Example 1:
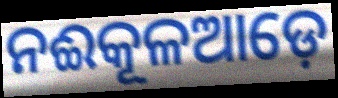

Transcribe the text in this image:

ନଈକୂଳଆଡ଼େ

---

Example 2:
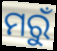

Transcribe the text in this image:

ମରୁଁ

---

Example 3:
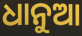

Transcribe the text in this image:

ଧାନୁଆ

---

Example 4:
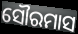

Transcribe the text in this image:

ସୌରମାସ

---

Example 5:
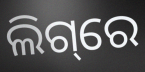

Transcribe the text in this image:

ଲିଗ୍‌ରେ